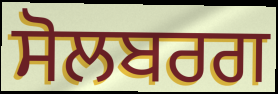
ਸੋਲਬਰਗ